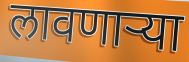
लावणाऱ्या